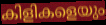
കിളികളെയും